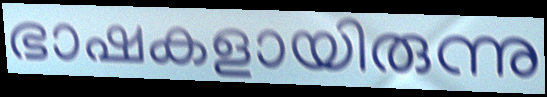
ഭാഷകളായിരുന്നു